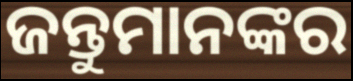
ଜନ୍ତୁମାନଙ୍କର